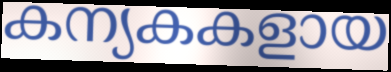
കന്യകകളായ